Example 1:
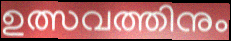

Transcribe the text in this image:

ഉത്സവത്തിനും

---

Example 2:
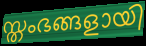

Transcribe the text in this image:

സ്തംഭങ്ങളായി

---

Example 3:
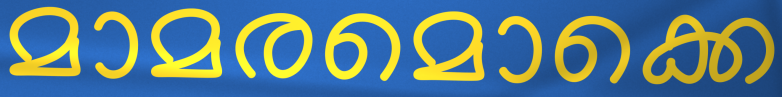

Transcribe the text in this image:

മാമരമൊക്കെ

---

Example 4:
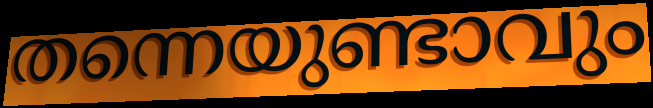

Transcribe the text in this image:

തന്നെയുണ്ടാവും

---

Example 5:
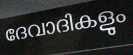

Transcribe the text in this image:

ദേവാദികളും